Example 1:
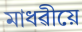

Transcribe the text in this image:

মাধৱীয়ে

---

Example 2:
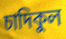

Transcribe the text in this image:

চাদিকুল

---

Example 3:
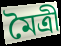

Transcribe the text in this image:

মৈত্ৰী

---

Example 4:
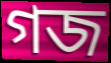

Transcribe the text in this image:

গজ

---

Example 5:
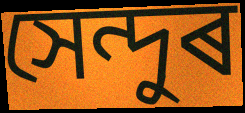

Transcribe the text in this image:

সেন্দুৰ